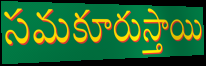
సమకూరుస్తాయి